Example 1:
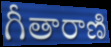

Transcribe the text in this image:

గీతారాణి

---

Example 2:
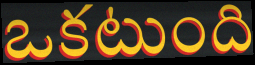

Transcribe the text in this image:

ఒకటుంది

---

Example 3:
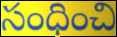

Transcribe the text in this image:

సంధించి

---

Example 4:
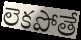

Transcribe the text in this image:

లెకపోతే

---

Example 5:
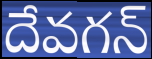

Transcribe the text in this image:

దేవగన్